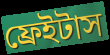
ফ্রেইটাস